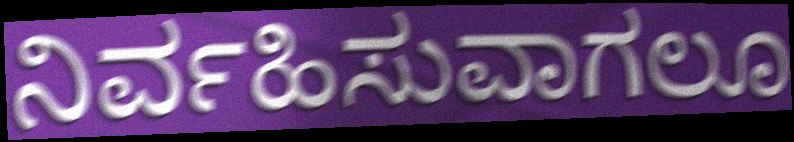
ನಿರ್ವಹಿಸುವಾಗಲೂ